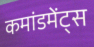
कमांडमेंट्स